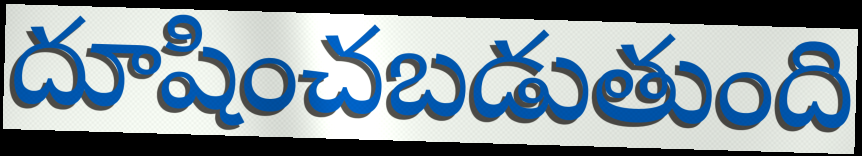
దూషించబడుతుంది